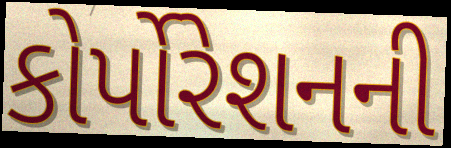
કોર્પોરેશનની